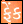
ફેંક